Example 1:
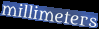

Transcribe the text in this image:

millimeters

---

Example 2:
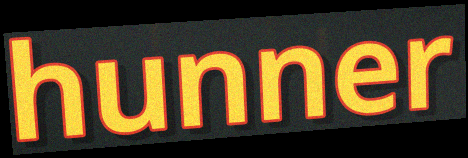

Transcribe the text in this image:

hunner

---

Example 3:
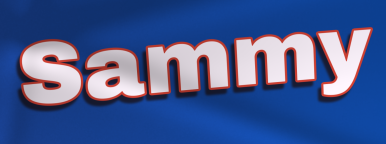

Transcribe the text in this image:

Sammy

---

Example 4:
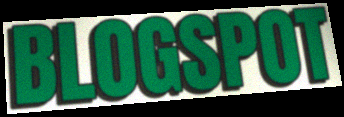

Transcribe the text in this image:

BLOGSPOT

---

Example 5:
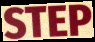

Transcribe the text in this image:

STEP